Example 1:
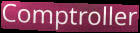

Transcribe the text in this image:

Comptroller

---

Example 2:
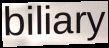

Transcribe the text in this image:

biliary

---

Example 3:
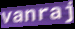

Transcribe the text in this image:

vanraj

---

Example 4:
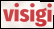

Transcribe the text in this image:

visigi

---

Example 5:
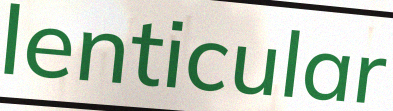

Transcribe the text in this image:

lenticular